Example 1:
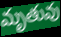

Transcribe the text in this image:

మృతువు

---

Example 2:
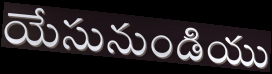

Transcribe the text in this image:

యేసునుండియు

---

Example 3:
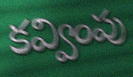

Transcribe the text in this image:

కవ్వింపు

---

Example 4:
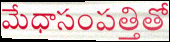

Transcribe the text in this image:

మేధాసంపత్తితో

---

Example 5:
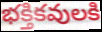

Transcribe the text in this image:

భక్తికవులకి